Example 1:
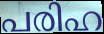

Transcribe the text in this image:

പരിഹ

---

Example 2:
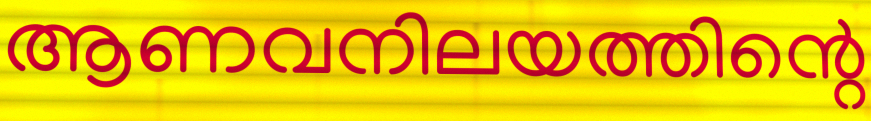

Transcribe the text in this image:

ആണവനിലയത്തിന്റെ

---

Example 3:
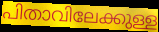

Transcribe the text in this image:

പിതാവിലേക്കുള്ള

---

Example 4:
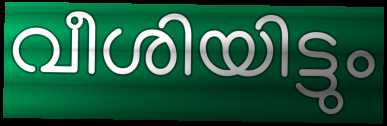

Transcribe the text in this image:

വീശിയിട്ടും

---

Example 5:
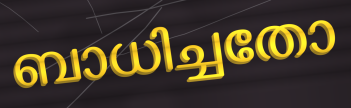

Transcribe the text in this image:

ബാധിച്ചതോ